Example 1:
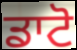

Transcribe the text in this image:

ਡਾਟੋ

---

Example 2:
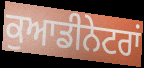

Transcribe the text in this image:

ਕੁਆਡੀਨੇਟਰਾਂ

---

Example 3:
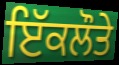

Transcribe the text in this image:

ਇੱਕਲੌਤੇ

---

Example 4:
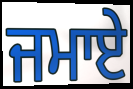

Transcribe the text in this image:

ਜਮਾਏ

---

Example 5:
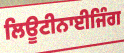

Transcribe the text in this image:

ਲਿਊਟੀਨਾਈਜਿੰਗ